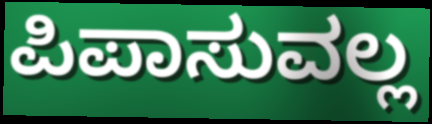
ಪಿಪಾಸುವಲ್ಲ